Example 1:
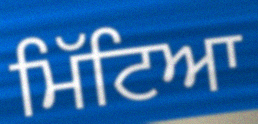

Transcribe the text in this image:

ਮਿੱਟਿਆ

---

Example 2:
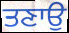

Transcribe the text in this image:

ਤਣਾਉ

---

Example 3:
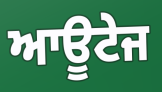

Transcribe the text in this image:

ਆਊਟੇਜ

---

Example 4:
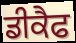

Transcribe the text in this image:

ਡੀਕੈਫ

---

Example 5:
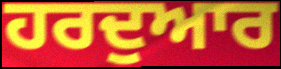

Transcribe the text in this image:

ਹਰਦੁਆਰ